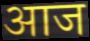
आज